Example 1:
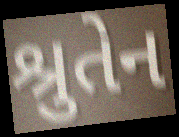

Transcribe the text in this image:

શ્રુતેન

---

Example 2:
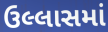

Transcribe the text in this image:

ઉલ્લાસમાં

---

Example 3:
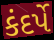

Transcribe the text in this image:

કંદર્પે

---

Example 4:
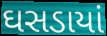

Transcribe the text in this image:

ઘસડાયાં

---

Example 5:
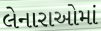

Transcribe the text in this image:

લેનારાઓમાં